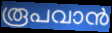
രൂപവാൻ